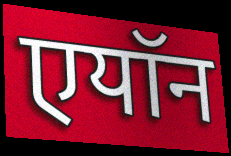
एयॉन